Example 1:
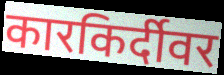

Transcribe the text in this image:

कारकिर्दीवर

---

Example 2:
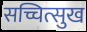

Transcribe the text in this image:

सच्चित्सुख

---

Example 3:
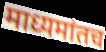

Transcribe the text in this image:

माध्यमांतच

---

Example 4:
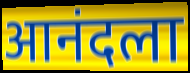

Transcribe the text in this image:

आनंदला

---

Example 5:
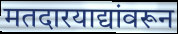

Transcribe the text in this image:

मतदारयाद्यांवरून